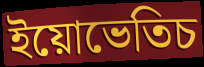
ইয়োভেতিচ